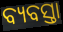
ବ୍ୟବସ୍ତା